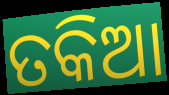
ତକିଆ